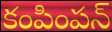
కంపింపన్